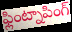
ఫ్లింట్నాపింగ్